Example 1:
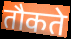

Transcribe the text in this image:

तौकते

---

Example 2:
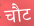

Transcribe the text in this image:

चौट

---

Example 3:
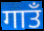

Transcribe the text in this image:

गाउँ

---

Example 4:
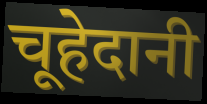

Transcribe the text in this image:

चूहेदानी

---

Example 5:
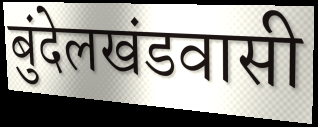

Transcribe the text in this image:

बुंदेलखंडवासी